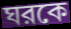
ঘরকে